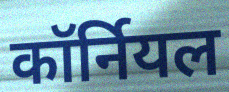
कॉर्नियल